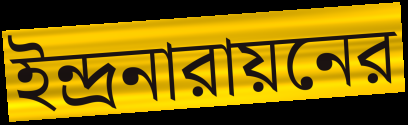
ইন্দ্রনারায়নের